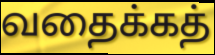
வதைக்கத்